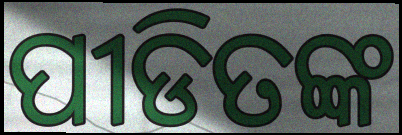
ପୀଡିତଙ୍କ